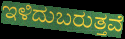
ಇಳಿದುಬರುತ್ತವೆ